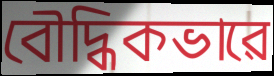
বৌদ্ধিকভাৱে